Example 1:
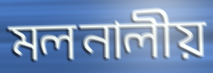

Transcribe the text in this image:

মলনালীয়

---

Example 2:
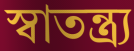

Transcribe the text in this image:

স্বাতন্ত্র্য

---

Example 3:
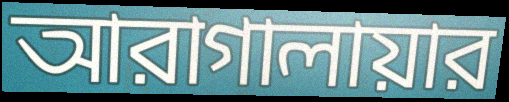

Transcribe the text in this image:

আরাগালায়ার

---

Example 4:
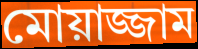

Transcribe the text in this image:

মোয়াজ্জাম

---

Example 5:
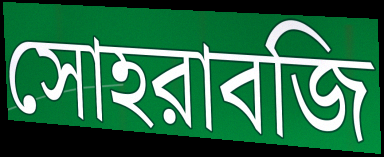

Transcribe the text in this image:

সোহরাবজি